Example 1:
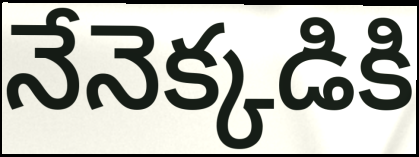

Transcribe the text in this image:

నేనెక్కడికి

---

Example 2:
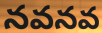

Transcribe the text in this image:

నవనవ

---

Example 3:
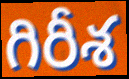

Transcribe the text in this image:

గిరీశ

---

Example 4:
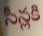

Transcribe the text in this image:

సీన్లకి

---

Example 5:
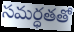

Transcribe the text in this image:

సమర్ధతతో